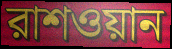
রাশওয়ান